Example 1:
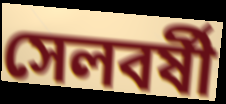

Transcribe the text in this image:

সেলবর্ষী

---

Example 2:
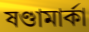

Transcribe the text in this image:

ষণ্ডামার্কা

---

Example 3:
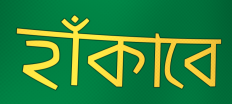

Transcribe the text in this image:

হাঁকাবে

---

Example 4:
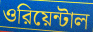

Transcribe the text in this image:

ওরিয়েন্টাল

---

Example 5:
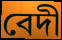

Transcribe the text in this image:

বেদী